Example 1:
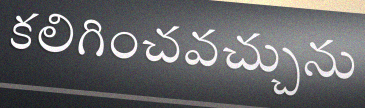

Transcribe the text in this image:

కలిగించవచ్చును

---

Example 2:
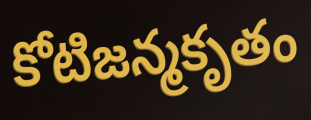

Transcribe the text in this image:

కోటిజన్మకృతం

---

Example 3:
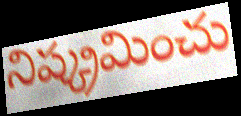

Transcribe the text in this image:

నిష్క్రమించు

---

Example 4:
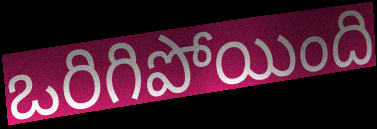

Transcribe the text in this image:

ఒరిగిపోయింది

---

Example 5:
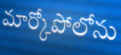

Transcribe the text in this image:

మార్కోపోలోను